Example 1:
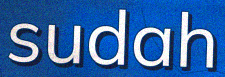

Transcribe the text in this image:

sudah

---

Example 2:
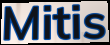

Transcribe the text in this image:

Mitis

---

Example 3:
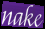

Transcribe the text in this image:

nake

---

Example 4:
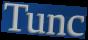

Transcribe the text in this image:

Tunc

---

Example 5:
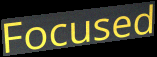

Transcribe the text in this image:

Focused